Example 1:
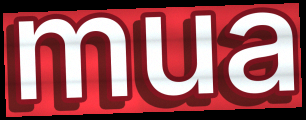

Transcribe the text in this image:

mua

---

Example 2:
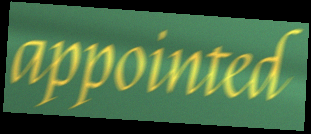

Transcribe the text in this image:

appointed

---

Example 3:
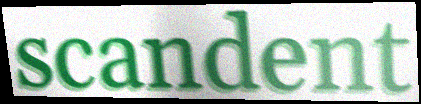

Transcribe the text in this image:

scandent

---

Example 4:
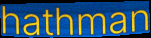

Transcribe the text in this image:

hathman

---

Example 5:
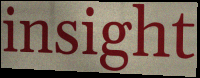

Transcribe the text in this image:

insight